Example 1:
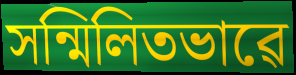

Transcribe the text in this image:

সন্মিলিতভাৱে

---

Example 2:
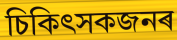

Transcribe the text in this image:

চিকিৎসকজনৰ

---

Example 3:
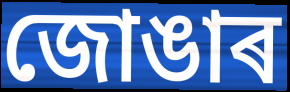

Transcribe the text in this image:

জোঙাৰ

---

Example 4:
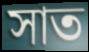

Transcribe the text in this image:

সাত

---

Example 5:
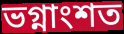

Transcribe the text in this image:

ভগ্নাংশত